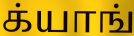
க்யாங்